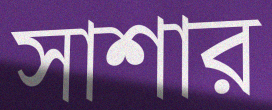
সাশার